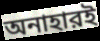
অনাহারই